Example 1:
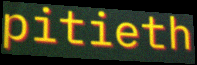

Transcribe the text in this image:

pitieth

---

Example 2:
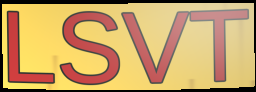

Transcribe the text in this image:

LSVT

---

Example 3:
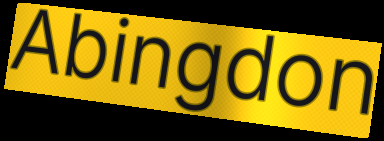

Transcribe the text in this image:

Abingdon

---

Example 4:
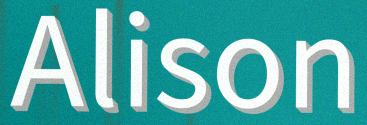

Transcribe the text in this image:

Alison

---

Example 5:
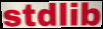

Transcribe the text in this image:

stdlib